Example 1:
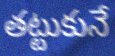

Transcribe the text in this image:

తట్టుకునే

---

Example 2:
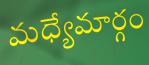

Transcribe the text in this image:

మధ్యేమార్గం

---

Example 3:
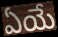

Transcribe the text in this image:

ఏయే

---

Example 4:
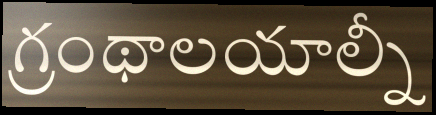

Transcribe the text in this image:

గ్రంథాలయాల్నీ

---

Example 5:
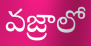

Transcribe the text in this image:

వజ్రాలో